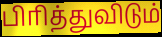
பிரித்துவிடும்